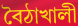
বৈঠাখালী